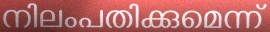
നിലംപതിക്കുമെന്ന്